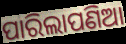
ପାରିଲାପଣିଆ